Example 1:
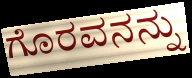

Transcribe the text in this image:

ಗೊರವನನ್ನು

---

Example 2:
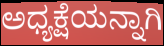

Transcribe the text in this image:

ಅಧ್ಯಕ್ಷೆಯನ್ನಾಗಿ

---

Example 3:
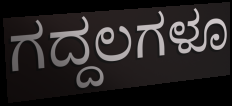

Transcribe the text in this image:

ಗದ್ದಲಗಳೂ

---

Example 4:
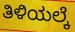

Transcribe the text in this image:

ತಿಳಿಯಲ್ಕೆ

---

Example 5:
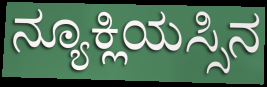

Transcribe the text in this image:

ನ್ಯೂಕ್ಲಿಯಸ್ಸಿನ